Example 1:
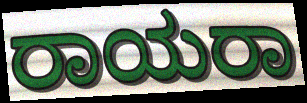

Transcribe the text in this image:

ರಾಯರಾ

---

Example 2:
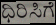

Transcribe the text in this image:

ಧಿರಿಸಿಗೆ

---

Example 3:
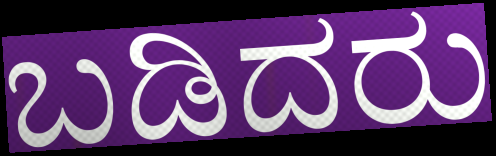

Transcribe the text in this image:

ಬಡಿದರು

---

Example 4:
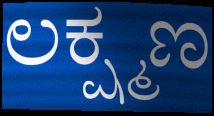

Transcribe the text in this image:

ಲಕ್ಷ್ಮಣ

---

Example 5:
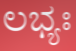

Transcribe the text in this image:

ಲಭ್ಯಃ